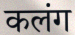
कलंग